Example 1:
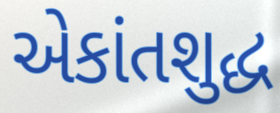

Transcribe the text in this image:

એકાંતશુદ્ધ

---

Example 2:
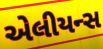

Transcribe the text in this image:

એલીયન્સ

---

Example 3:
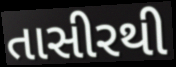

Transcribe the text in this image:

તાસીરથી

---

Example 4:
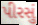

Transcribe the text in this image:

પીરસું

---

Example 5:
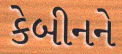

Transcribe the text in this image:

કેબીનને